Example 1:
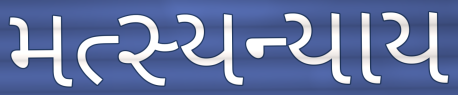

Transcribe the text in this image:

મત્સ્યન્યાય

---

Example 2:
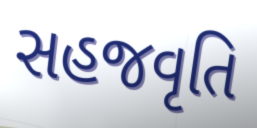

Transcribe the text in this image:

સહજવૃતિ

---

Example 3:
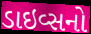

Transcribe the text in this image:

ડાઇવ્સનો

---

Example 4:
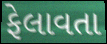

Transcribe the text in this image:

ફેલાવતા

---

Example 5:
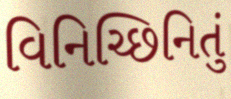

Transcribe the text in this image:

વિનિચ્છિનિતું